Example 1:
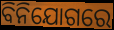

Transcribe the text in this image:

ବିନିଯୋଗରେ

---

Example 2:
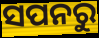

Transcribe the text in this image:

ସପନରୁ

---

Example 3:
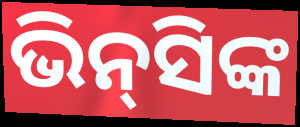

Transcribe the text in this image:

ଭିନ୍‍ସିଙ୍କ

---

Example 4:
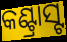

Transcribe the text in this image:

କଣ୍ଟ୍ରାସ୍ଟ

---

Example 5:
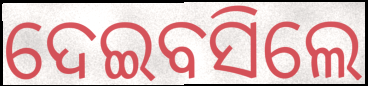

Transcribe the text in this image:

ଦେଇବସିଲେ